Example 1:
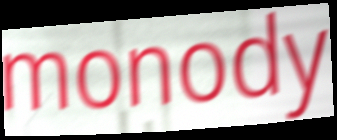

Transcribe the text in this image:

monody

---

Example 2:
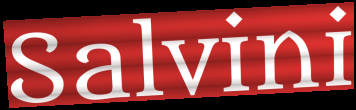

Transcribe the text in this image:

Salvini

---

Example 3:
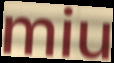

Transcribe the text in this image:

miu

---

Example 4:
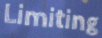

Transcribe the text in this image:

Limiting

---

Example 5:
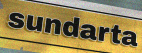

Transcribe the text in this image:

sundarta